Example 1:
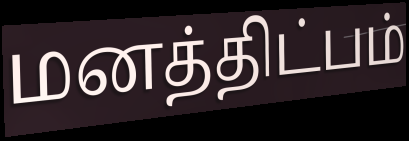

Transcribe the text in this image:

மனத்திட்பம்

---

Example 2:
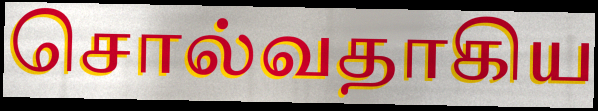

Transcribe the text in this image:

சொல்வதாகிய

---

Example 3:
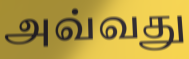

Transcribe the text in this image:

அவ்வது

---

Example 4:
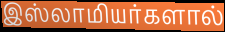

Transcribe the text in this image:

இஸ்லாமியர்களால்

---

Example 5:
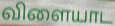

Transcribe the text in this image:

விளையாட